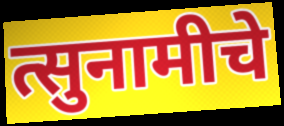
त्सुनामीचे